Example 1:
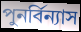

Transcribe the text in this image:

পুনর্বিন্যাস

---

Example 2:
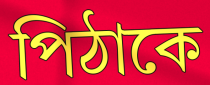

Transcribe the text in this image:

পিঠাকে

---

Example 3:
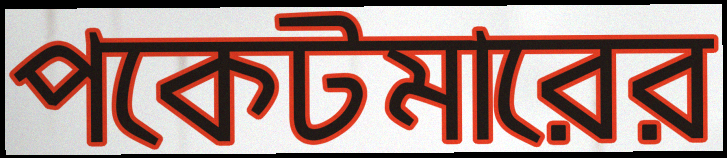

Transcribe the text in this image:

পকেটমারের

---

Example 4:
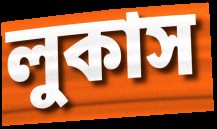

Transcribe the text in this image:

লুকাস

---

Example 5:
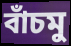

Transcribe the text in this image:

বাঁচমু